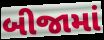
બીજામાં